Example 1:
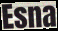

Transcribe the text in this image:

Esna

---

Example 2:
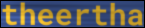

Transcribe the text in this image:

theertha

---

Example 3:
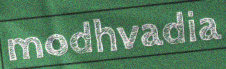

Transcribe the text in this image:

modhvadia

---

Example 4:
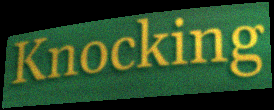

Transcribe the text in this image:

Knocking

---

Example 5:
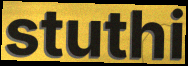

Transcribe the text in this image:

stuthi